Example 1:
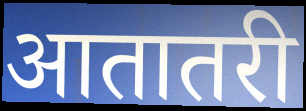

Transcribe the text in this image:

आतातरी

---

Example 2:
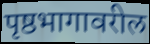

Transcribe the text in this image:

पृष्ठभागावरील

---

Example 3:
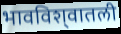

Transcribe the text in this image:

भावविश्वातली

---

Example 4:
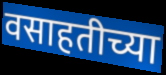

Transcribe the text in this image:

वसाहतीच्या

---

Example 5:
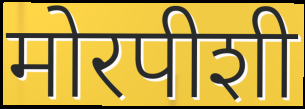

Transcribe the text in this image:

मोरपीशी